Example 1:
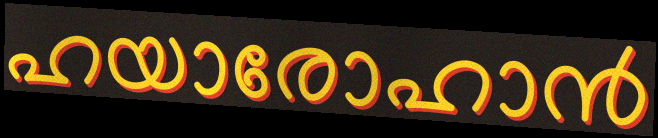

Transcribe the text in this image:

ഹയാരോഹാൻ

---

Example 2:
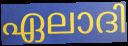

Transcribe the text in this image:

ഏലാദി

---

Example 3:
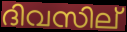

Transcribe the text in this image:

ദിവസില്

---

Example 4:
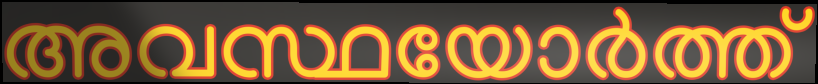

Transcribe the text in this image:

അവസ്ഥയോർത്ത്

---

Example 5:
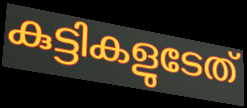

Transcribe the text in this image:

കുട്ടികളുടേത്